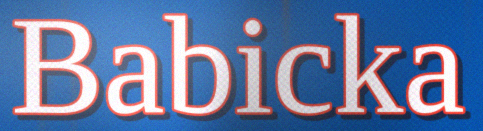
Babicka